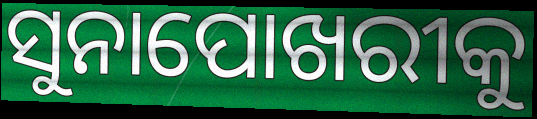
ସୁନାପୋଖରୀକୁ